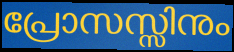
പ്രോസസ്സിനും